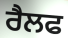
ਰੈਲਫ